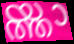
യ്ത്താ